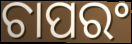
ଚାପରଂ